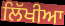
ਲਿੱਖੀਆ